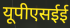
यूपीएसईई